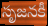
సృజనకీ